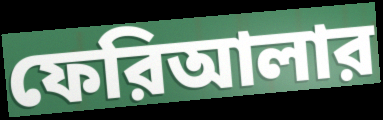
ফেরিআলার